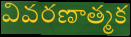
వివరణాత్మక